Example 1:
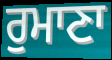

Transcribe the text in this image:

ਰੁਮਾਣਾ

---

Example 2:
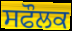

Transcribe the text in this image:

ਸਫੌਲਕ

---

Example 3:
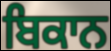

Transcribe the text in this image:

ਬਿਕਾਨ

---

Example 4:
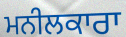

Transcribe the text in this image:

ਮਨੀਲਕਾਰਾ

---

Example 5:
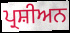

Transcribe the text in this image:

ਪ੍ਰਸ਼ੀਅਨ